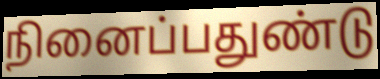
நினைப்பதுண்டு